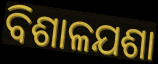
ବିଶାଳଯଶା